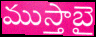
ముస్తాబై